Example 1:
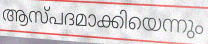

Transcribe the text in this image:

ആസ്പദമാക്കിയെന്നും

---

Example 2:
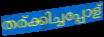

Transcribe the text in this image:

തര്ക്കിച്ചപ്പോള്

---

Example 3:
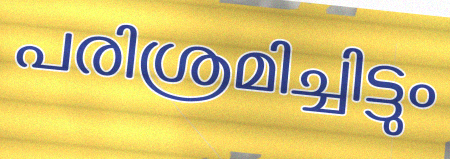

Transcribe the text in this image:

പരിശ്രമിച്ചിട്ടും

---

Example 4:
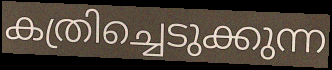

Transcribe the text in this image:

കത്രിച്ചെടുക്കുന്ന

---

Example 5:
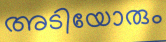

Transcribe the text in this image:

അടിയോരും